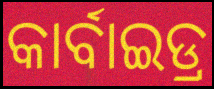
କାର୍ବାଇଡ୍ର